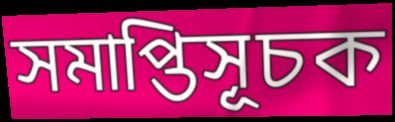
সমাপ্তিসূচক